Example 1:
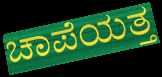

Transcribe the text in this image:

ಚಾಪೆಯತ್ತ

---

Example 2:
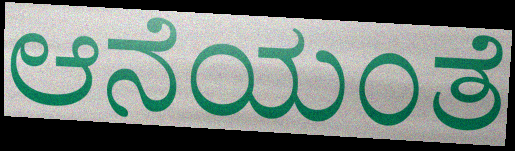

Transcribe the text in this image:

ಆನೆಯಂತೆ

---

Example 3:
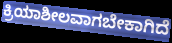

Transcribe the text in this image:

ಕ್ರಿಯಾಶೀಲವಾಗಬೇಕಾಗಿದೆ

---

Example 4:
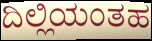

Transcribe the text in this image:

ದಿಲ್ಲಿಯಂತಹ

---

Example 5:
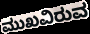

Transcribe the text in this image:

ಮುಖವಿರುವ